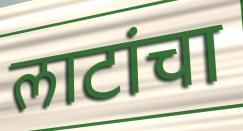
लाटांचा